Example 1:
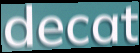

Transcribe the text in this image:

decat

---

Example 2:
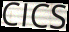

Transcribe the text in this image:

CICS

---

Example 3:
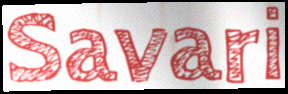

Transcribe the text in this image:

Savari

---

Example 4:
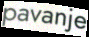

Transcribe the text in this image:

pavanje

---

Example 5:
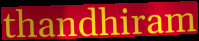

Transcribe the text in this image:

thandhiram